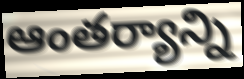
ఆంతర్యాన్ని